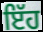
ਇੱਹ